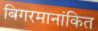
बिगरमानांकित